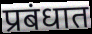
प्रबंधात